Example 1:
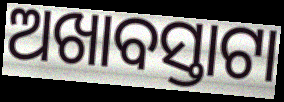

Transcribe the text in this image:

ଅଖାବସ୍ତାଟା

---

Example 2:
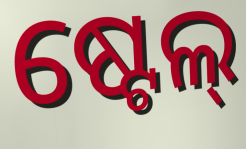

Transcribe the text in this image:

ଷ୍ଟେଲ୍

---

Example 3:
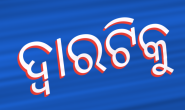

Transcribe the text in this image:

ଦ୍ଵାରଟିକୁ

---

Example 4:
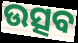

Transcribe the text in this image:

ଉତ୍ସବ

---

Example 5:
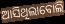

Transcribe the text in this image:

ଆସିଥିଲାବୋଲି